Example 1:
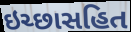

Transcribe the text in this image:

ઇચ્છાસહિત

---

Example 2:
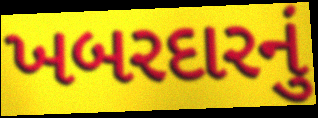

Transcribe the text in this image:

ખબરદારનું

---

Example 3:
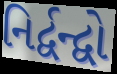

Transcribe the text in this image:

નિર્દ્વન્દ્વો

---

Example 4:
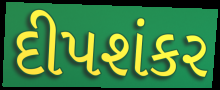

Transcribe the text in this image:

દીપશંકર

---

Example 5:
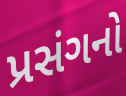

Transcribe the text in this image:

પ્રસંગનો